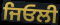
ਜਿਓਲੀ